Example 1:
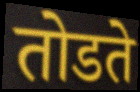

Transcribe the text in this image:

तोडते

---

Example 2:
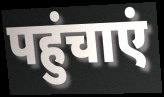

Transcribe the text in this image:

पहुंचाएं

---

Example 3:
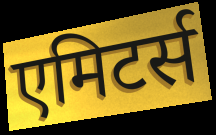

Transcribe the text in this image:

एमिटर्स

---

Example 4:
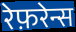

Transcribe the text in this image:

रेफ़रेन्स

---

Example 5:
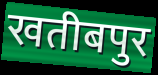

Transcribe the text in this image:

खतीबपुर